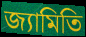
জ্যামিতি